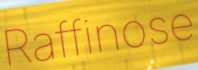
Raffinose